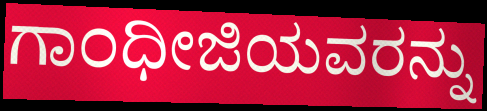
ಗಾಂಧೀಜಿಯವರನ್ನು